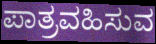
ಪಾತ್ರವಹಿಸುವ